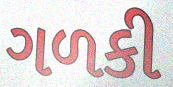
ગળકી